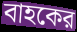
বাহকের